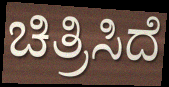
ಚಿತ್ರಿಸಿದೆ